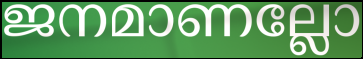
ജനമാണല്ലോ